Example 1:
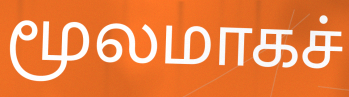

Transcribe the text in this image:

மூலமாகச்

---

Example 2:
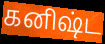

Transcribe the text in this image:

கனிஷ்ட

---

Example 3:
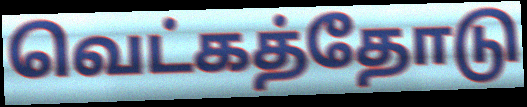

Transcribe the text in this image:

வெட்கத்தோடு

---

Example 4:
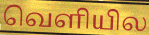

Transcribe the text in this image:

வெளியில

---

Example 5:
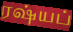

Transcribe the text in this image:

ரஷ்யப்